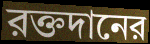
রক্তদানের